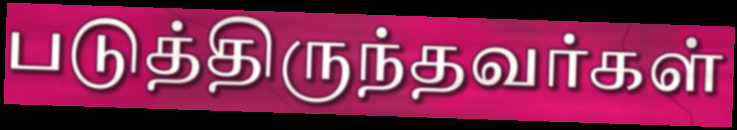
படுத்திருந்தவர்கள்